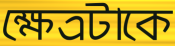
ক্ষেত্রটাকে